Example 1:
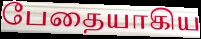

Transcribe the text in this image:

பேதையாகிய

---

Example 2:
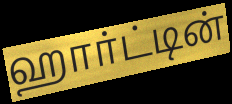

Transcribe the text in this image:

ஹார்ட்டின்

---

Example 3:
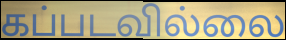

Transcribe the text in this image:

கப்படவில்லை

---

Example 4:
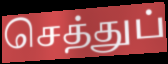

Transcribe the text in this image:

செத்துப்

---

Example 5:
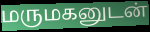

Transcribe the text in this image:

மருமகனுடன்